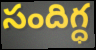
సందిగ్ధ